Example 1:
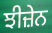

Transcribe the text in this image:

ਝੀਜ਼ੇਨ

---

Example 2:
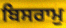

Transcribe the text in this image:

ਬਿਸਰਾਮੁ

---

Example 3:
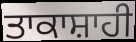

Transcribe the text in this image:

ਤਾਕਾਸ਼ਾਹੀ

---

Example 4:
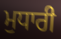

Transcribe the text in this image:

ਮੁਧਾਰੀ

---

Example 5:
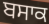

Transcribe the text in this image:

ਬਸਾਕ